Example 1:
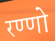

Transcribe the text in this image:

रण्णो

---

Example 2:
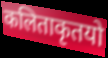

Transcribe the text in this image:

कलिताकृतयो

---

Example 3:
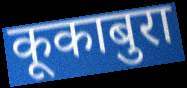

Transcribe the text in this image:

कूकाबुरा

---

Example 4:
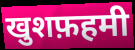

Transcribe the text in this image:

खुशफ़हमी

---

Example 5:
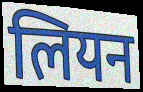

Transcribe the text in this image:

लियन